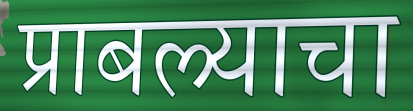
प्राबल्याचा